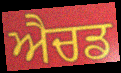
ਐਚਡ